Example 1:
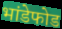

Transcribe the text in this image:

भांडेफोड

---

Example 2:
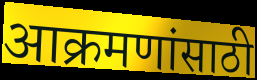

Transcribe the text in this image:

आक्रमणांसाठी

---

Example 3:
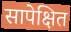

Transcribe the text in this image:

सापेक्षित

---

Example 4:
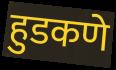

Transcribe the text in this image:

हुडकणे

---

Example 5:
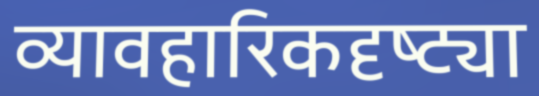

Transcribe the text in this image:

व्यावहारिकदृष्ट्या